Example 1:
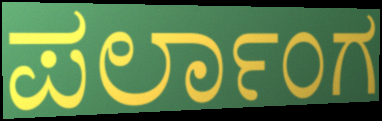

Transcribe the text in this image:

ಪರ್ಲಾಂಗ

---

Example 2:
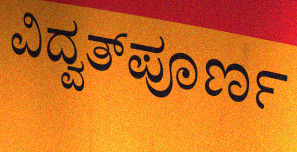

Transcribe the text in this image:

ವಿದ್ವತ್‌ಪೂರ್ಣ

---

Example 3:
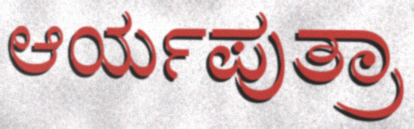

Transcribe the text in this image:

ಆರ್ಯಪುತ್ರಾ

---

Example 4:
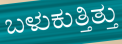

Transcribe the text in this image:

ಬಳುಕುತ್ತಿತ್ತು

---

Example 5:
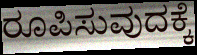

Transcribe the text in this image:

ರೂಪಿಸುವುದಕ್ಕೆ